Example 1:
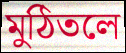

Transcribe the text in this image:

মুঠিতলে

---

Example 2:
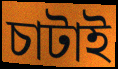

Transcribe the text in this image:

চাটাই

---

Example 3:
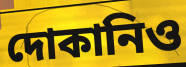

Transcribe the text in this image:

দোকানিও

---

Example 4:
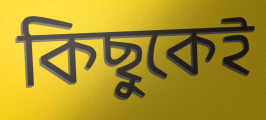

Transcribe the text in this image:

কিছুকেই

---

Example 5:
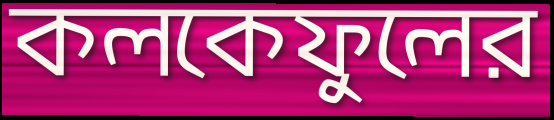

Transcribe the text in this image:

কলকেফুলের